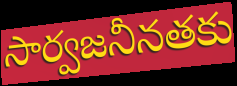
సార్వజనీనతకు